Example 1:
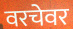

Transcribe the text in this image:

वरचेवर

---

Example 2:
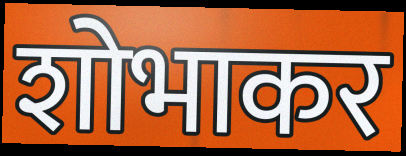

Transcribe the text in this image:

शोभाकर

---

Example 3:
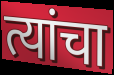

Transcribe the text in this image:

त्यांचा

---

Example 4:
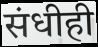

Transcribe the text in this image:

संधीही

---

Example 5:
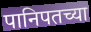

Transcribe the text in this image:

पानिपतच्या